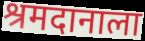
श्रमदानाला